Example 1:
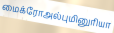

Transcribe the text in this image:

மைக்ரோஅல்புமினுரியா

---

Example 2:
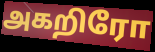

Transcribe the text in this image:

அகறிரோ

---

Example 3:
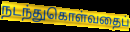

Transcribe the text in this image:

நடந்துகொள்வதைப்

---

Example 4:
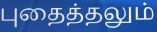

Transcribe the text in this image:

புதைத்தலும்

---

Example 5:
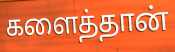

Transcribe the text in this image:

களைத்தான்